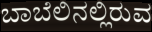
ಬಾಬೆಲಿನಲ್ಲಿರುವ